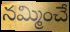
నమ్మించే